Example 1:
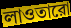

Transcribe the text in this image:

লাওতারো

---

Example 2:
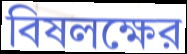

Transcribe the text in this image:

বিষলক্ষের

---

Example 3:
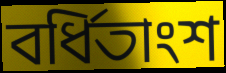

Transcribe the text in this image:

বর্ধিতাংশ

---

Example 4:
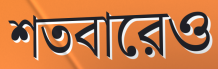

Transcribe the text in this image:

শতবারেও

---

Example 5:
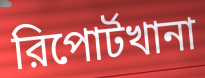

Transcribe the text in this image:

রিপোর্টখানা